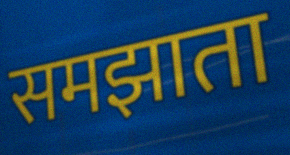
समझाता